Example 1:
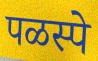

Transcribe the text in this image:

पळस्पे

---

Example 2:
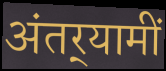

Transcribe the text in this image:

अंतर्यामीं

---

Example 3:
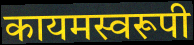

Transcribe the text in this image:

कायमस्वरूपी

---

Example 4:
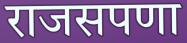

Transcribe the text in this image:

राजसपणा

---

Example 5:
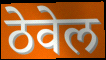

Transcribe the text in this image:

ठेवेल